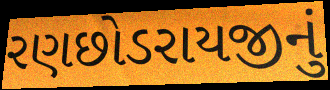
રણછોડરાયજીનું